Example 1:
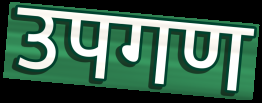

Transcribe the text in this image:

उपगण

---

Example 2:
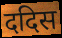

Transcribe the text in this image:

ददिस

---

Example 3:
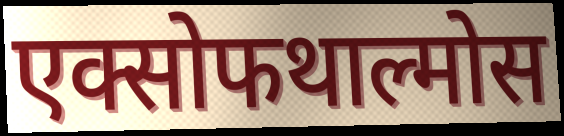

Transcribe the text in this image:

एक्सोफथाल्मोस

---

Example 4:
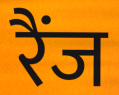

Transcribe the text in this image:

रैंज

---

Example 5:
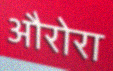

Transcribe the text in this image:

औरोरा